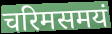
चरिमसमयं